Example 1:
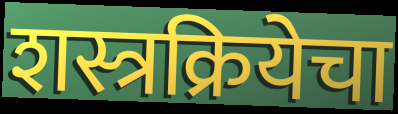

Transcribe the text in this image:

शस्त्रक्रियेचा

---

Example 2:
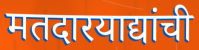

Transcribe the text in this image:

मतदारयाद्यांची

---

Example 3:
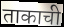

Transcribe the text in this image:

ताकाची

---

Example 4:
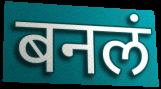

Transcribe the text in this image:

बनलं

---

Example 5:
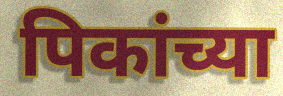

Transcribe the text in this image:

पिकांच्या